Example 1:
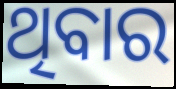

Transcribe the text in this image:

ଥିବାର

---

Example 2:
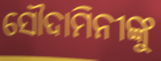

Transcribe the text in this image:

ସୌଦାମିନୀଙ୍କୁ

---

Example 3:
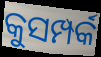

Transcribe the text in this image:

କୁସମ୍ପର୍କ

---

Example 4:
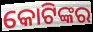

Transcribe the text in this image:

କୋଟିଙ୍କର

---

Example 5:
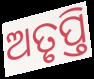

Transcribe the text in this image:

ଅତୃପ୍ତି